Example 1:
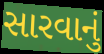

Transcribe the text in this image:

સારવાનું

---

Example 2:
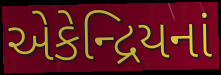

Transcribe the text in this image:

એકેન્દ્રિયનાં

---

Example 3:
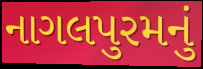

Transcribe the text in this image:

નાગલપુરમનું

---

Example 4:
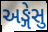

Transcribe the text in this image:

અઙ્ગેસુ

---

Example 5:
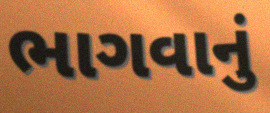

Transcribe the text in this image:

ભાગવાનું